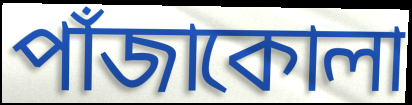
পাঁজাকোলা